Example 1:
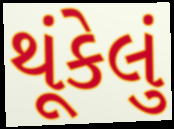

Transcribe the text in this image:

થૂંકેલું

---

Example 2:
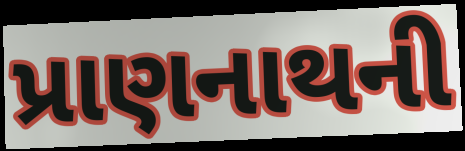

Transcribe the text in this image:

પ્રાણનાથની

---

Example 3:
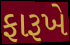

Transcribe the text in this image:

ફારૂખે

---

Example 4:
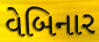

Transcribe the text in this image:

વેબિનાર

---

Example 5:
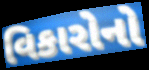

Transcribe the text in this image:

વિકારોનો